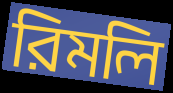
রিমলি